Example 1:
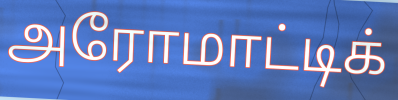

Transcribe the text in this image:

அரோமாட்டிக்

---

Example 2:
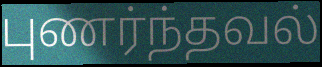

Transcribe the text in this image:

புணர்ந்தவல்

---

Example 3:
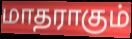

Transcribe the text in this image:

மாதராகும்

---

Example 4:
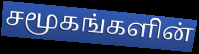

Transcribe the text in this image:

சமூகங்களின்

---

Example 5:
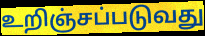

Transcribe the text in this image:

உறிஞ்சப்படுவது